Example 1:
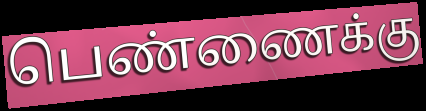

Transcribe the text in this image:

பெண்ணைக்கு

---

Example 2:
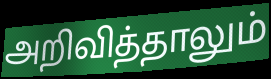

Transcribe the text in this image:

அறிவித்தாலும்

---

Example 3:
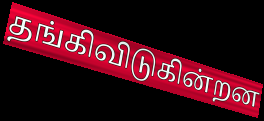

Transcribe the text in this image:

தங்கிவிடுகின்றன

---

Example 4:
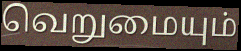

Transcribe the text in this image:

வெறுமையும்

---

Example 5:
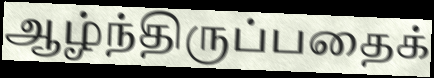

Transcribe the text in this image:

ஆழ்ந்திருப்பதைக்